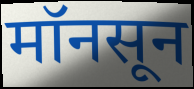
मॉनसून